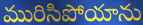
మురిసిపోయాను